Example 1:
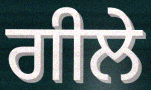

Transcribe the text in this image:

ਗੀਲੇ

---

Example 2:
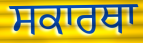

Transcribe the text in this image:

ਸਕਾਰਥਾ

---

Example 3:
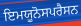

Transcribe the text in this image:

ਇਮਯੂਨੋਸਪਰੈਸਨ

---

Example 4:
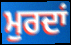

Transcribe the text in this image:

ਮੁਰਦਾਂ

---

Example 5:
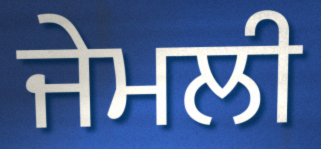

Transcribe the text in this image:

ਜੇਮਲੀ